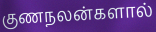
குணநலன்களால்